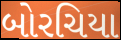
બોરચિયા